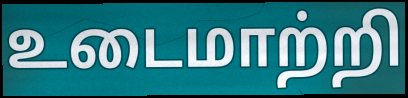
உடைமாற்றி